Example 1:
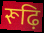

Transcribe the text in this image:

रूढ़ि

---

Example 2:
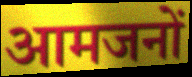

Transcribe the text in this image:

आमजनों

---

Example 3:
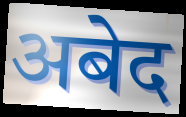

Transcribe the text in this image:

अबेद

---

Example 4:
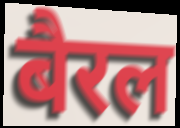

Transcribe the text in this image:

बैरल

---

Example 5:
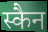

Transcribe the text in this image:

स्कैन